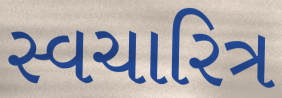
સ્વચારિત્ર